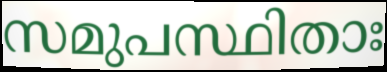
സമുപസ്ഥിതാഃ